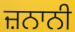
ਜ਼ਨਾਨੀ